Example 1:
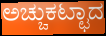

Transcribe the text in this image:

ಅಚ್ಚುಕಟ್ಟಾದ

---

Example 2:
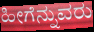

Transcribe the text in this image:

ಹೀಗೆನ್ನುವರು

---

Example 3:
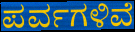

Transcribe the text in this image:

ಪರ್ವಗಳಿವೆ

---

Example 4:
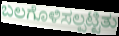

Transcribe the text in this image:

ಬಲಗೊಳಿಸಲ್ಪಟ್ಟಿತು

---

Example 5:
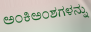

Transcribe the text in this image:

ಅಂಕಿಅಂಶಗಳನ್ನು